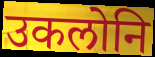
उकलोनि